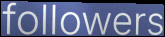
followers